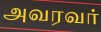
அவரவர்